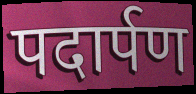
पदार्पण